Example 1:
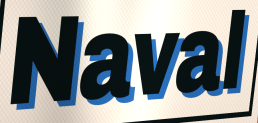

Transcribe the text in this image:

Naval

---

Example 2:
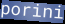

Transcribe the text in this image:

porini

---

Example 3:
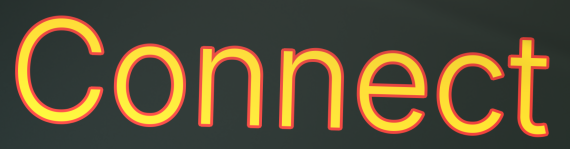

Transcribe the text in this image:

Connect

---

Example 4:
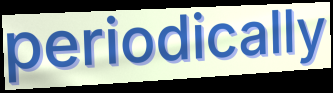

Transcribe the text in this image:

periodically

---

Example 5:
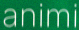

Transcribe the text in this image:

animi